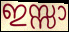
ഇസ്സാ